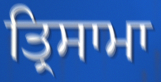
ਤ੍ਰਿਸਾਮਾ